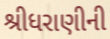
શ્રીધરાણીની